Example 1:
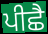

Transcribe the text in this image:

ਪੀਛੈ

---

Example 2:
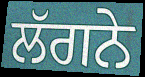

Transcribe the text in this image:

ਲੱਗਨੇ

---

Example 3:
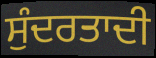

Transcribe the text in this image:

ਸੁੰਦਰਤਾਦੀ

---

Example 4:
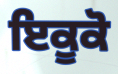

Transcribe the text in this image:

ਇਕੂਕੋ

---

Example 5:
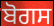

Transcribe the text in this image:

ਬੋਗਸ